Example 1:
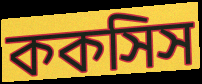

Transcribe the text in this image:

ককসিস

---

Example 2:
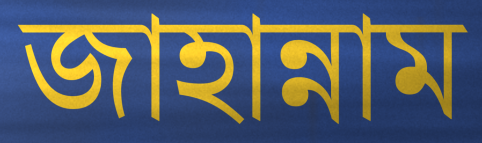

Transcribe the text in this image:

জাহান্নাম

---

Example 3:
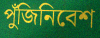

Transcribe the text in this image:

পুঁজিনিবেশ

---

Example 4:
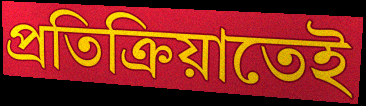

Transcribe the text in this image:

প্রতিক্রিয়াতেই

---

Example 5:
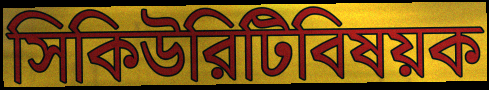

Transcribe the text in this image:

সিকিউরিটিবিষয়ক